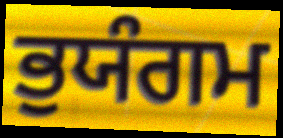
ਭੁਯੰਗਮ